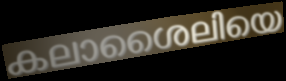
കലാശൈലിയെ